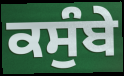
ਕਸੁੰਬੇ